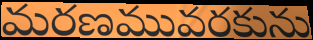
మరణమువరకును